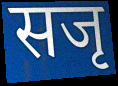
सजृ